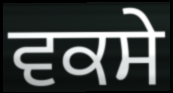
ਵਕਸੇ